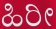
ಹಿರೀ